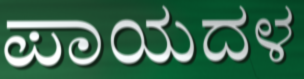
ಪಾಯದಳ